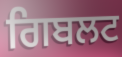
ਗਿਬਲਟ